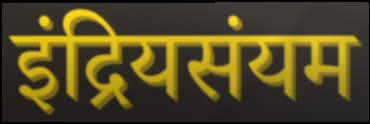
इंद्रियसंयम